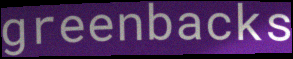
greenbacks